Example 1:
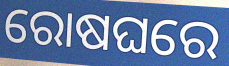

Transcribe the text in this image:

ରୋଷଘରେ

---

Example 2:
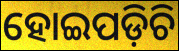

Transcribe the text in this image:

ହୋଇପଡ଼ିଚି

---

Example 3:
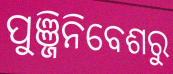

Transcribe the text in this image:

ପୁଞ୍ଜିନିବେଶରୁ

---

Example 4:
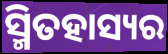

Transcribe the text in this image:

ସ୍ମିତହାସ୍ୟର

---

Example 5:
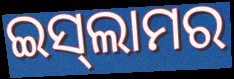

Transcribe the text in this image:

ଇସ୍‍ଲାମର